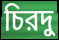
চিরদু